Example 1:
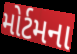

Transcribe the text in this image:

મોર્ટમના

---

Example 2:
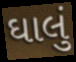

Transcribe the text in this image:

ઘાલું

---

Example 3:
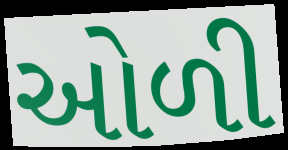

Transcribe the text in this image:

ઓળી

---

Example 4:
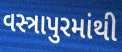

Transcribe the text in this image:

વસ્ત્રાપુરમાંથી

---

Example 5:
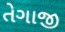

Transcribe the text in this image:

તેગાજી